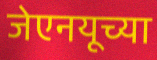
जेएनयूच्या